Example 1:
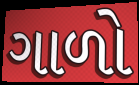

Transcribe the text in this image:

ગાળો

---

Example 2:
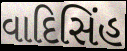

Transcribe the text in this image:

વાદિસિંહ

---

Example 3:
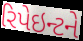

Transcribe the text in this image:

રિપેઇન્ટને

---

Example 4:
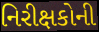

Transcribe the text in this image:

નિરીક્ષકોની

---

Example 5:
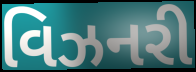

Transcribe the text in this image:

વિઝનરી